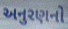
અનુરણનો